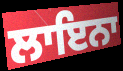
ਲਾਇਨਾ